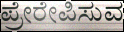
ಪ್ರೇರೇಪಿಸುವ